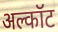
अल्कॉट